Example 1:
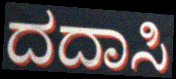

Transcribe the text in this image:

ದದಾಸಿ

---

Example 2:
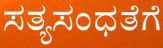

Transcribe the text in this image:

ಸತ್ಯಸಂಧತೆಗೆ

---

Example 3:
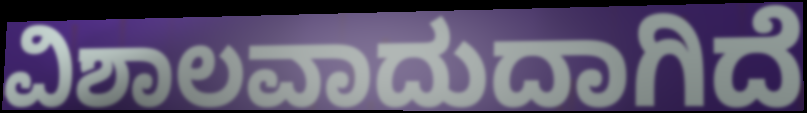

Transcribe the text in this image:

ವಿಶಾಲವಾದುದಾಗಿದೆ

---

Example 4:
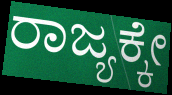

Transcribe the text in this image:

ರಾಜ್ಯಕ್ಕೇ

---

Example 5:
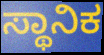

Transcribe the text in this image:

ಸ್ಥಾನಿಕ